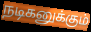
நடிகனுக்கும்